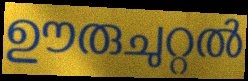
ഊരുചുറ്റൽ